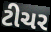
ટીચર